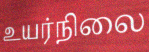
உயர்நிலை